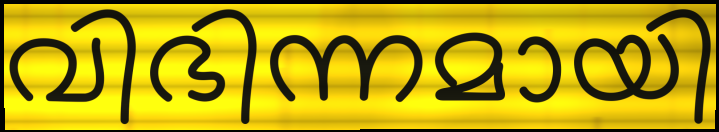
വിഭിന്നമായി